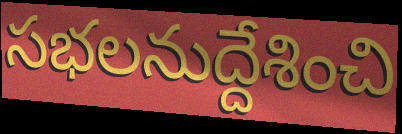
సభలనుద్దేశించి